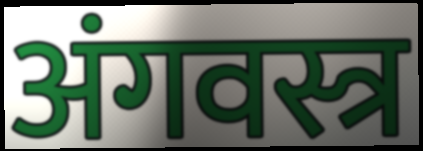
अंगवस्त्र